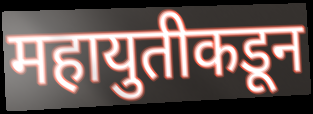
महायुतीकडून